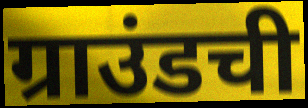
ग्राउंडची